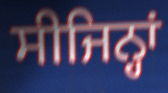
ਸੀਜਿਨ੍ਹਾਂ